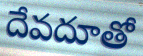
దేవదూతో